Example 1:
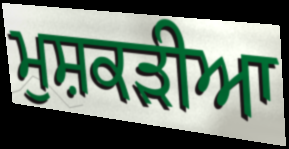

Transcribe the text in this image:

ਮੁਸ਼ਕੜੀਆ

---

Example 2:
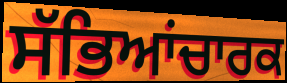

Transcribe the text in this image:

ਸੱਭਿਆਂਚਾਰਕ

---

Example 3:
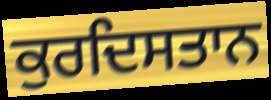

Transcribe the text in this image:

ਕੁਰਦਿਸਤਾਨ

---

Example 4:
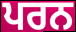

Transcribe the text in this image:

ਪਰਨ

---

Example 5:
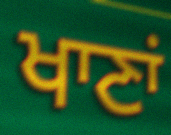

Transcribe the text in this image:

ਖਾਣਾਂ